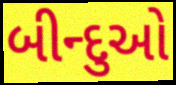
બીન્દુઓ